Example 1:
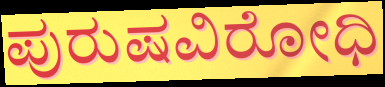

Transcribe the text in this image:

ಪುರುಷವಿರೋಧಿ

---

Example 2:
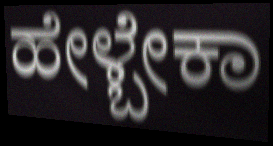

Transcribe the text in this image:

ಹೇಳ್ಬೇಕಾ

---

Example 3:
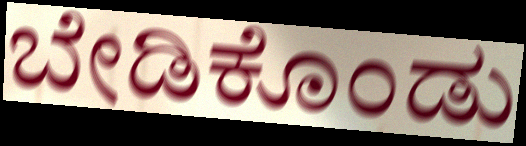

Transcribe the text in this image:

ಬೇಡಿಕೊಂಡು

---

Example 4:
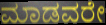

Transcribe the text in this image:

ಮಾಡವರೇ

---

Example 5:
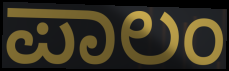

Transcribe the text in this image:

ಪಾಲಂ